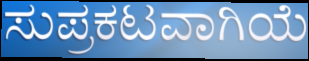
ಸುಪ್ರಕಟವಾಗಿಯೆ